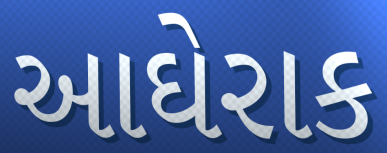
આઘેરાક